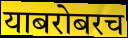
याबरोबरच